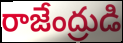
రాజేంద్రుడి